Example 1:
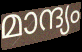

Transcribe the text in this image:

മാന്ദ്യം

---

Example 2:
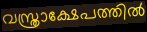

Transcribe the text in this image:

വസ്ത്രാക്ഷേപത്തിൽ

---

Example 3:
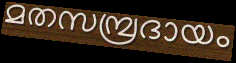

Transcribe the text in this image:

മതസമ്പ്രദായം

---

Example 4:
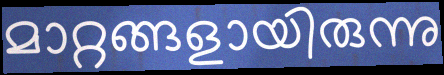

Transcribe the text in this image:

മാറ്റങ്ങളായിരുന്നു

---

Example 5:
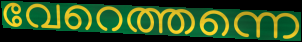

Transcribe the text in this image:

വേറെത്തന്നെ